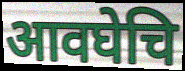
आवघेचि